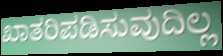
ಖಾತರಿಪಡಿಸುವುದಿಲ್ಲ